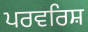
ਪਰਵਰਿਸ਼